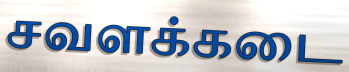
சவளக்கடை